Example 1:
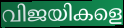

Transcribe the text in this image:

വിജയികളെ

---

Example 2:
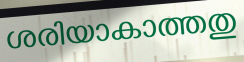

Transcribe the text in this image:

ശരിയാകാത്തതു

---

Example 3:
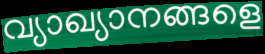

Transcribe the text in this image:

വ്യാഖ്യാനങ്ങളെ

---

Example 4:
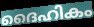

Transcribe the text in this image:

ദൈഹികം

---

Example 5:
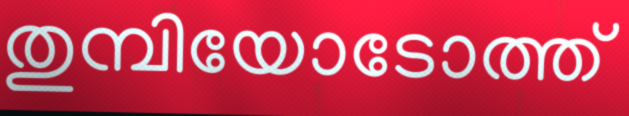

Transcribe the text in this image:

തുമ്പിയോടോത്ത്